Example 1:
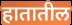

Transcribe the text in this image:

हातातील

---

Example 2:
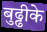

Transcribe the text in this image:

बुढ्ढीके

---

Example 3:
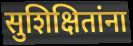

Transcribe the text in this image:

सुशिक्षितांना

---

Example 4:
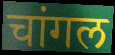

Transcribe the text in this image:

चांगल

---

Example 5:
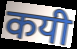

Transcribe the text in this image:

कयी